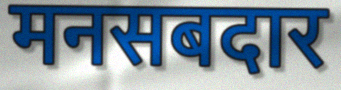
मनसबदार